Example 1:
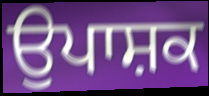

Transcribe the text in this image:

ਉਪਾਸ਼ਕ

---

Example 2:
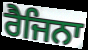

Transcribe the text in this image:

ਰੈਜਿਨਾ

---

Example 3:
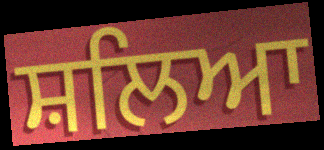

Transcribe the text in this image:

ਸ਼ਲਿਆ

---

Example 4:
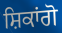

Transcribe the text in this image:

ਸ਼ਿਕਾਂਗੋ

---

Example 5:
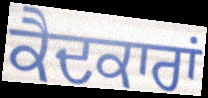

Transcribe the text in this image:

ਕੈਦਕਾਰਾਂ